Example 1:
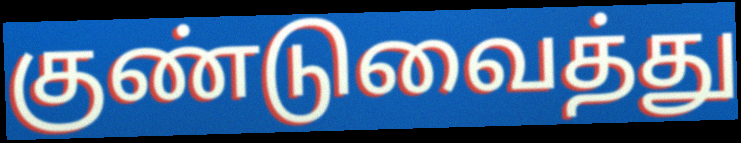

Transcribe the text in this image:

குண்டுவைத்து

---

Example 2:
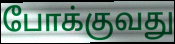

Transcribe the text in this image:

போக்குவது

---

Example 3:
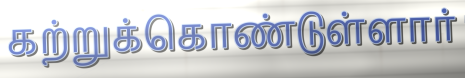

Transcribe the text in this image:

கற்றுக்கொண்டுள்ளார்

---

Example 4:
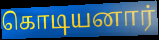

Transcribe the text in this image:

கொடியனார்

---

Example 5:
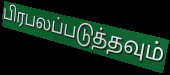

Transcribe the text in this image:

பிரபலப்படுத்தவும்